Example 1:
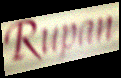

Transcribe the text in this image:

Rupan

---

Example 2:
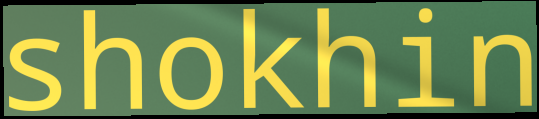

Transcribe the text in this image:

shokhin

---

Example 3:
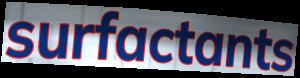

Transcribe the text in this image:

surfactants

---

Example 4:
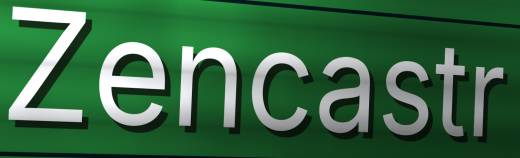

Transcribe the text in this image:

Zencastr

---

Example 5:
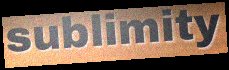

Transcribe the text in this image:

sublimity